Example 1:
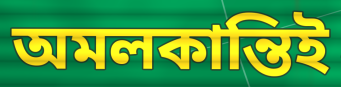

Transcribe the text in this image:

অমলকান্তিই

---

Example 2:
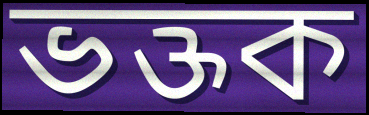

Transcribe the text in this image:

ভক্তক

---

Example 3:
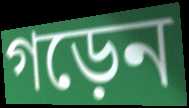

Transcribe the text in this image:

গড়েন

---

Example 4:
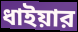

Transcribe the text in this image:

ধাইয়ার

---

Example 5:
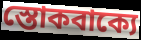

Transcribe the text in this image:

স্তোকবাক্যে